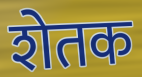
शेतक